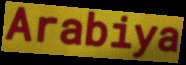
Arabiya